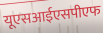
यूएसआईएसपीएफ